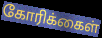
கோரிக்கைள்